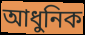
আধুনিক